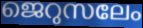
ജെറുസലേം